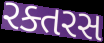
રક્તરસ